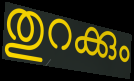
തുറക്കും